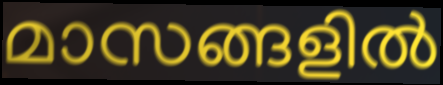
മാസങ്ങളിൽ